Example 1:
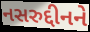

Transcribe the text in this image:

નસરુદ્દીનને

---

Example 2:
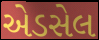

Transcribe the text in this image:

એડસેલ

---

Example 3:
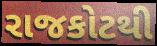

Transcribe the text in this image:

રાજકોટથી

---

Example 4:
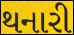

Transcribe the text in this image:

થનારી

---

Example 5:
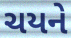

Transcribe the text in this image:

ચયને